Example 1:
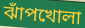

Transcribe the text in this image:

ঝাঁপখোলা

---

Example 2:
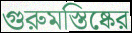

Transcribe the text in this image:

গুরুমস্তিষ্কের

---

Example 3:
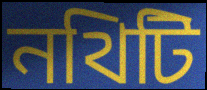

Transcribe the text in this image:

নথিটি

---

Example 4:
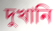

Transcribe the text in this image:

দুখানি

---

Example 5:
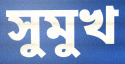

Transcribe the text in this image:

সুমুখ